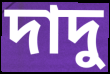
দাদু